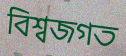
বিশ্বজগত